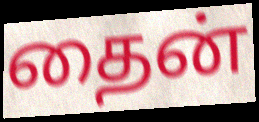
தைன்